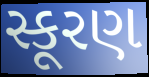
સ્કૂરણ